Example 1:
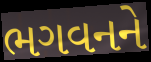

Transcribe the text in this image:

ભગવનને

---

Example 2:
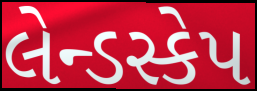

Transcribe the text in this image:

લેન્ડસ્કેપ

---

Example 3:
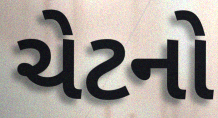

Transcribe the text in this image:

ચેટનો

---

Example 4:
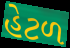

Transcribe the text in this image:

હેટળ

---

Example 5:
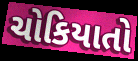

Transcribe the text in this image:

ચોકિયાતો